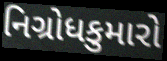
નિગ્રોધકુમારો